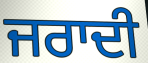
ਜਰਾਦੀ